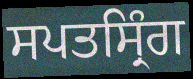
ਸਪਤਸ੍ਰਿੰਗ